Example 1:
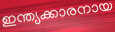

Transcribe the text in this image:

ഇന്ത്യക്കാരനായ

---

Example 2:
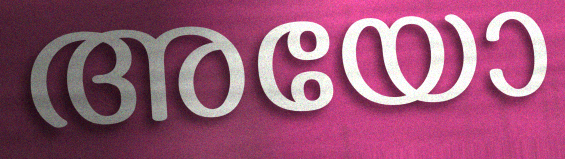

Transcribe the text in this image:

അയോ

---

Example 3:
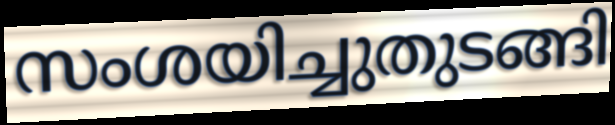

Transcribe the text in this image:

സംശയിച്ചുതുടങ്ങി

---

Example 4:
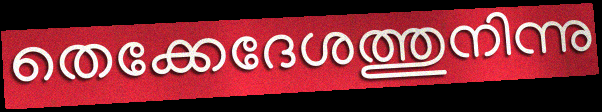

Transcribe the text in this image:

തെക്കേദേശത്തുനിന്നു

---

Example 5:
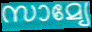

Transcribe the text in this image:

സാമ്യേ